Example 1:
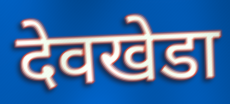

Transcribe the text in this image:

देवखेडा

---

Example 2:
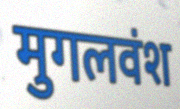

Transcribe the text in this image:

मुगलवंश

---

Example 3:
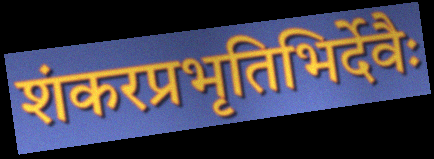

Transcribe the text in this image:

शंकरप्रभृतिभिर्देवैः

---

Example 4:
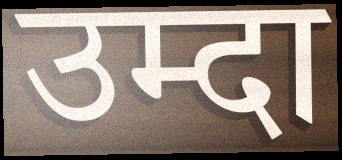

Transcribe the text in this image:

उम्‍दा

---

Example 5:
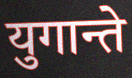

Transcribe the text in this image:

युगान्ते